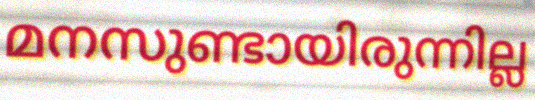
മനസുണ്ടായിരുന്നില്ല